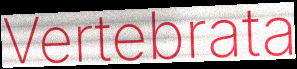
Vertebrata